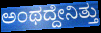
ಅಂಥದ್ದೇನಿತ್ತು